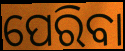
ପେରିବା